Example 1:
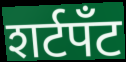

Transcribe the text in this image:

शर्टपॅंट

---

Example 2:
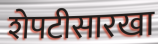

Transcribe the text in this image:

शेपटीसारखा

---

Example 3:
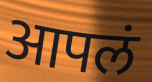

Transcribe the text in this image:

आपलं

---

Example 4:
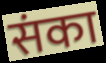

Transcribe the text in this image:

संका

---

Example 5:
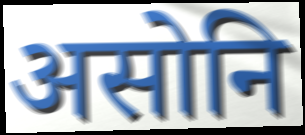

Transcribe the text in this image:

असोनि